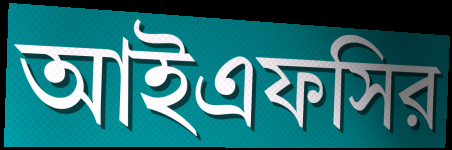
আইএফসির